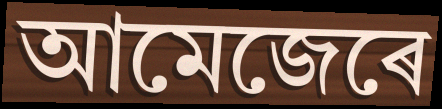
আমেজেৰে